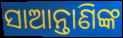
ସାଆନ୍ତାଣିଙ୍କ